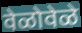
वेळोवेळे